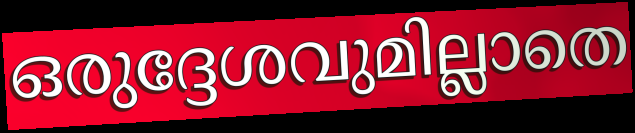
ഒരുദ്ദേശവുമില്ലാതെ